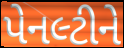
પેનલ્ટીને